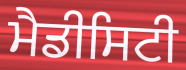
ਮੈਡੀਸਿਟੀ